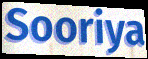
Sooriya